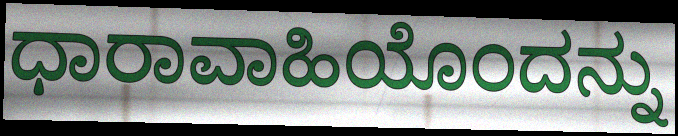
ಧಾರಾವಾಹಿಯೊಂದನ್ನು